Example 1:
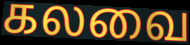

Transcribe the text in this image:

கலவை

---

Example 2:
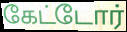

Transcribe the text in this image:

கேட்டோர்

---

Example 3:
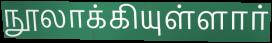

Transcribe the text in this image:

நூலாக்கியுள்ளார்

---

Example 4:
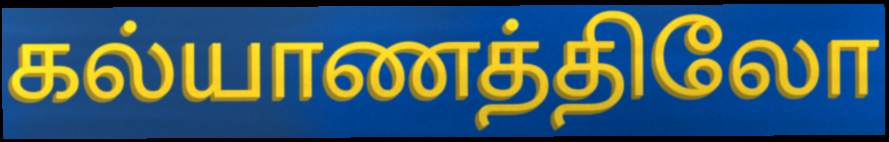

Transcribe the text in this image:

கல்யாணத்திலோ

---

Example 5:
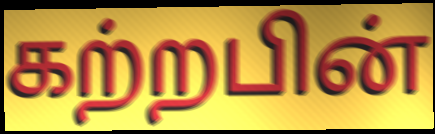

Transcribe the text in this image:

கற்றபின்